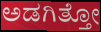
ಅಡಗಿತ್ತೋ